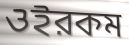
ওইরকম